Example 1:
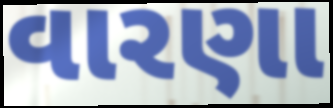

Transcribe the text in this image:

વારણા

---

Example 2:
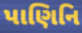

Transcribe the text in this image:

પાણિનિ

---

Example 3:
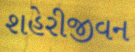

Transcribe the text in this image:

શહેરીજીવન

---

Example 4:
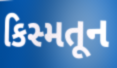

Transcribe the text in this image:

કિસ્મતૂન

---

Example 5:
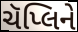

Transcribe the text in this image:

ચૅપ્લિને